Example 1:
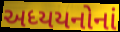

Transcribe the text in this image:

અધ્યયનોનાં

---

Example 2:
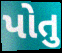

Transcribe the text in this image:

પોતુ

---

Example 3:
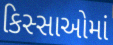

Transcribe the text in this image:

કિસ્સાઓમાં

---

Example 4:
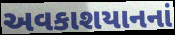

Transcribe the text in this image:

અવકાશયાનનાં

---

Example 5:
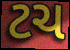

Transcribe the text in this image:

ટચ